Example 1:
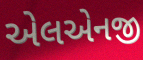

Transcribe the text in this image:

એલએનજી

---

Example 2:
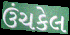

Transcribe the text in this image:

ઉંચકેલ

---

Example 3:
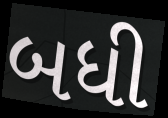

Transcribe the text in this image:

બધી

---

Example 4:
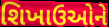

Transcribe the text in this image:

શિખાઉઓને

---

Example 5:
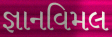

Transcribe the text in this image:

જ્ઞાનવિમલ